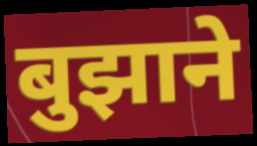
बुझाने